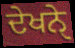
ਦੇਖਨੑੇ